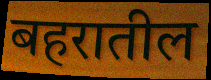
बहरातील